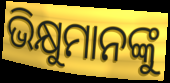
ଭିକ୍ଷୁମାନଙ୍କୁ